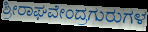
ಶ್ರೀರಾಘವೇಂದ್ರಗುರುಗಳ